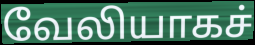
வேலியாகச்